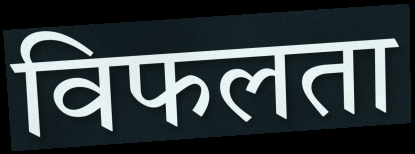
विफलता